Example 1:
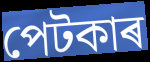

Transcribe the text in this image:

পেটকাৰ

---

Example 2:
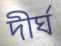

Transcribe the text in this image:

দীৰ্ঘ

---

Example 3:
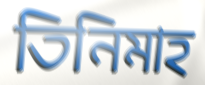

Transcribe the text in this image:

তিনিমাহ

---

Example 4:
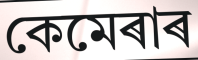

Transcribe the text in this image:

কেমেৰাৰ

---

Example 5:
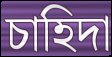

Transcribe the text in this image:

চাহিদা